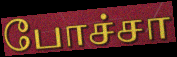
போச்சா